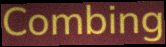
Combing